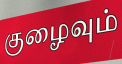
குழைவும்